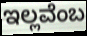
ಇಲ್ಲವೆಂಬ